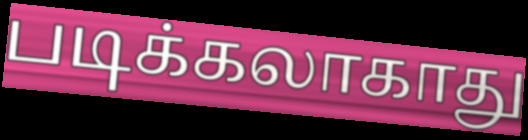
படிக்கலாகாது